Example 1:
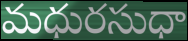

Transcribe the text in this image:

మధురసుధా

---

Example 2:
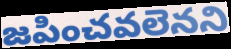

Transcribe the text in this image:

జపించవలెనని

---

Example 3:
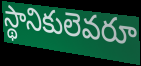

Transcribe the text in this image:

స్థానికులెవరూ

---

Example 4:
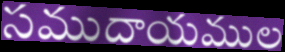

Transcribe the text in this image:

సముదాయముల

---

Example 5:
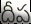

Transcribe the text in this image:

దీప